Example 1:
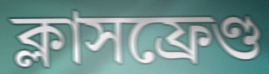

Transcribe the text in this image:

ক্লাসফ্রেণ্ড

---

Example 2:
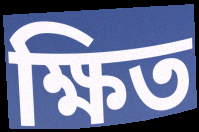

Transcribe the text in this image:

ক্ষিত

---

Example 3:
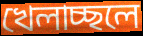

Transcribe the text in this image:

খেলাচ্ছলে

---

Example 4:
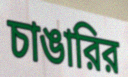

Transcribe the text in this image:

চাঙারির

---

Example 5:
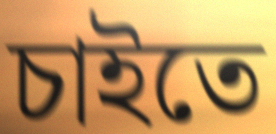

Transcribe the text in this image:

চাইতে